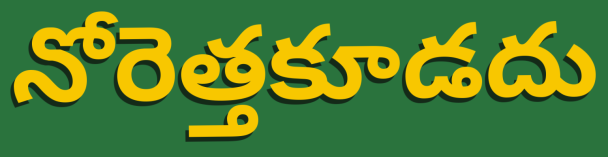
నోరెత్తకూడదు